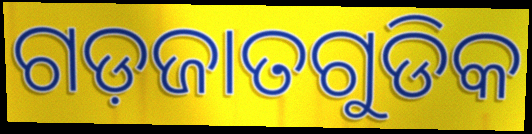
ଗଡ଼ଜାତଗୁଡିକ